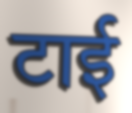
टाई